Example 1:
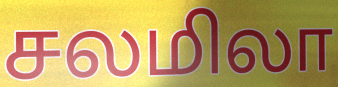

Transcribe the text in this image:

சலமிலா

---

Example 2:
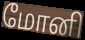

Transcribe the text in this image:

மோனி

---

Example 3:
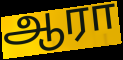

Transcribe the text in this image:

ஆரா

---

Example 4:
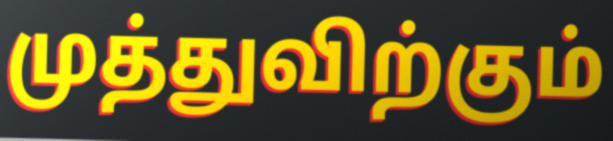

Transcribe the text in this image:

முத்துவிற்கும்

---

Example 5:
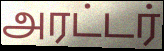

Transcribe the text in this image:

அரட்டர்